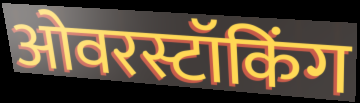
ओवरस्टॉकिंग